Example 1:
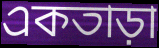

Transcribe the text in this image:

একতাড়া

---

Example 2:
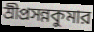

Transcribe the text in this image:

শ্রীপ্রসন্নকুমার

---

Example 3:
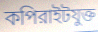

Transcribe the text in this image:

কপিরাইটযুক্ত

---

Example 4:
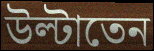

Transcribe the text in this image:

উল্টাতেন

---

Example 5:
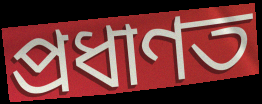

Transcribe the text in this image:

প্রধাণত